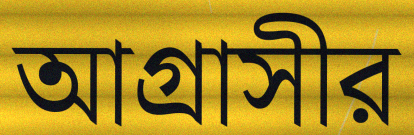
আগ্রাসীর